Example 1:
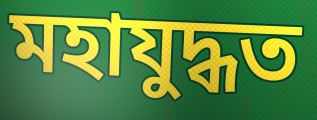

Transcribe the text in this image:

মহাযুদ্ধত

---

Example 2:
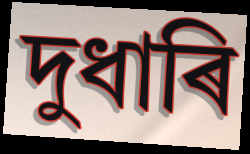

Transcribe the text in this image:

দুধাৰি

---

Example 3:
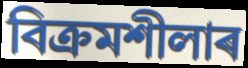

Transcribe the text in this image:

বিক্ৰমশীলাৰ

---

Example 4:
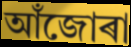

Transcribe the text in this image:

আঁজোৰা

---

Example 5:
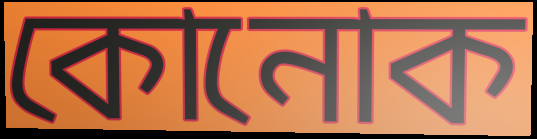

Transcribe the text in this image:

কোনোক